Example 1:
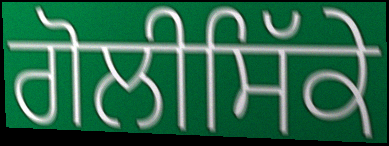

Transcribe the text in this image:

ਗੋਲੀਸਿੱਕੇ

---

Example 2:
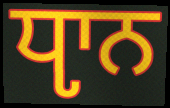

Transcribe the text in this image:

ਧੵਾਨ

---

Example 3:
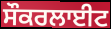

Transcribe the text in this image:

ਸੌਕਰਲਾਈਟ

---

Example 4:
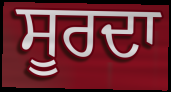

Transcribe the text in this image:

ਸੂਰਦਾ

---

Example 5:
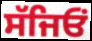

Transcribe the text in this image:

ਸੱਜਿਓਂ